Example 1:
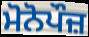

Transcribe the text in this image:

ਮੋਨੋਪੌਜ਼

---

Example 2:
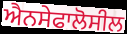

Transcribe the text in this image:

ਐਨਸੇਫਾਲੋਸੀਲ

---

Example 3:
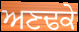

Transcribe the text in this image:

ਅਣਢਕੇ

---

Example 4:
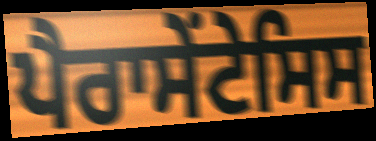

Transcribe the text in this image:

ਪੈਰਾਸੇਂਟੇਸਿਸ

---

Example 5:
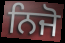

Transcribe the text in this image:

ਨਿਜੋ